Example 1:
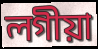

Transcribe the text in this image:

লগীয়া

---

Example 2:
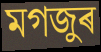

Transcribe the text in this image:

মগজুৰ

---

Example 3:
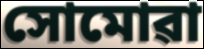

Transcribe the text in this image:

সোমোৱা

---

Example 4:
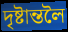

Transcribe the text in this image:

দৃষ্টান্তলৈ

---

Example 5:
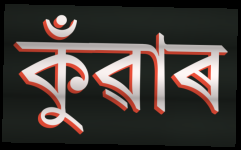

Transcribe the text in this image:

কুঁৱাৰ